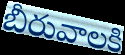
బీరువాలకి